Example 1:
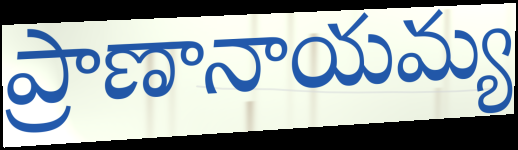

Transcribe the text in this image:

ప్రాణానాయమ్య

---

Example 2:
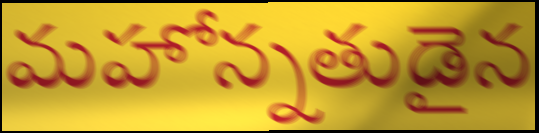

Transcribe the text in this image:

మహోన్నతుడైన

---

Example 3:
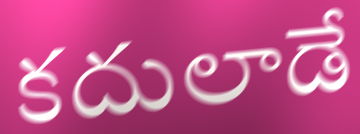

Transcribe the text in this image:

కదులాడే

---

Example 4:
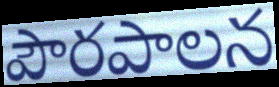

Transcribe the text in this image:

పౌరపాలన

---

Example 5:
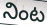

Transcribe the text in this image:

నింట